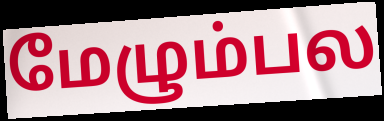
மேழும்பல